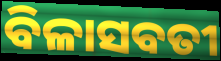
ବିଳାସବତୀ